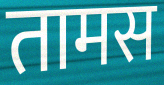
तामस